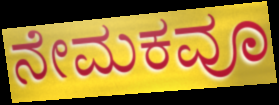
ನೇಮಕವೂ